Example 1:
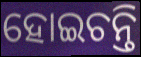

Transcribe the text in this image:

ହୋଇଚନ୍ତି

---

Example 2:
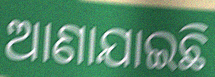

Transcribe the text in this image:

ଆଣାଯାଇଛି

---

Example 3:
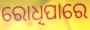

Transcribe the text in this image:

ରୋଧିପାରେ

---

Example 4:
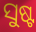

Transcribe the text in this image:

ସୁଷ୍ଟ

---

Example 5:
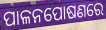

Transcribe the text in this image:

ପାଳନପୋଷଣରେ